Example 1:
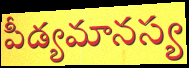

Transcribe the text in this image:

పీడ్యమానస్య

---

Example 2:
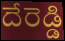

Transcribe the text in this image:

దేరెడ్డి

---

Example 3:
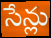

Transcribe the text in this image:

సేన్లు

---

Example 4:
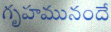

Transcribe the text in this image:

గృహమునందే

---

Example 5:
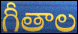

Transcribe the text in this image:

గీతాల